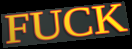
FUCK